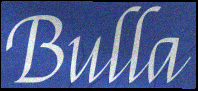
Bulla